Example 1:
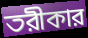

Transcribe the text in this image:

তরীকার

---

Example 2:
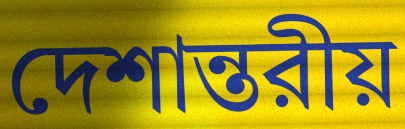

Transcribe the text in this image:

দেশান্তরীয়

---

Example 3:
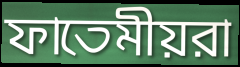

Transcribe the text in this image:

ফাতেমীয়রা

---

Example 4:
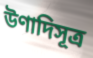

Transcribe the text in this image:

উণাদিসূত্র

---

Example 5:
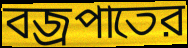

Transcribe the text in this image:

বজ্রপাতের